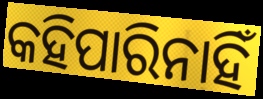
କହିପାରିନାହିଁ